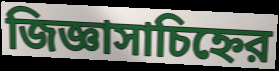
জিজ্ঞাসাচিহ্নের